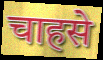
चाहसे